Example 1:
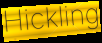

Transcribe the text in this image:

Hickling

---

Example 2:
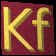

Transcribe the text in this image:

Kf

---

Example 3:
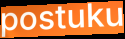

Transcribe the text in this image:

postuku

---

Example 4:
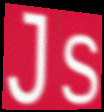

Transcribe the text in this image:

Js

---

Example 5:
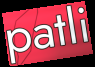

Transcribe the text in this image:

patli